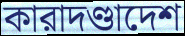
কারাদণ্ডাদেশ